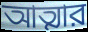
আত্মার